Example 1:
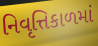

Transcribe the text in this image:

નિવૃત્તિકાળમાં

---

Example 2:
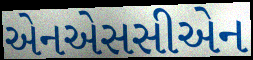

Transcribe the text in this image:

એનએસસીએન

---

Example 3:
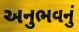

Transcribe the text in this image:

અનુભવનું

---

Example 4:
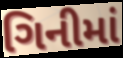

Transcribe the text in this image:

ગિનીમાં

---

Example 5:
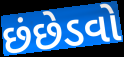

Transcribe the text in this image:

છંછેડવો